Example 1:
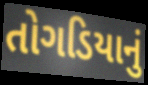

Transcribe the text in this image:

તોગડિયાનું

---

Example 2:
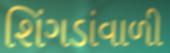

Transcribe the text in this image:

શિંગડાંવાળી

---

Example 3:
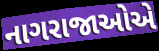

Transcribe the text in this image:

નાગરાજાઓએ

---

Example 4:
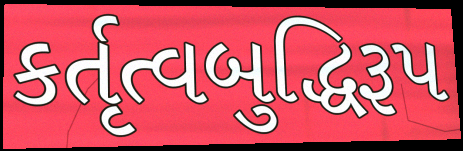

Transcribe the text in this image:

કર્તૃત્વબુદ્ધિરૂપ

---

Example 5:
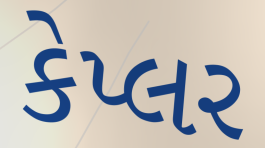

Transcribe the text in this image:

કેપ્લર